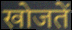
खोजतें